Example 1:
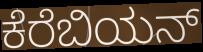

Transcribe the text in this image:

ಕೆರೆಬಿಯನ್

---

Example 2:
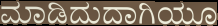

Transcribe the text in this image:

ಮಾಡಿದುದಾಗಿಯೂ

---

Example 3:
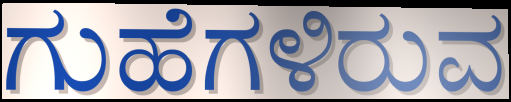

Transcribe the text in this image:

ಗುಹೆಗಳಿರುವ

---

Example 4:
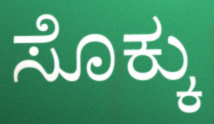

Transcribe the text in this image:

ಸೊಕ್ಕು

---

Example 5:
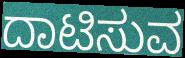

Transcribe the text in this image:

ದಾಟಿಸುವ